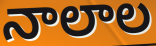
నాలాల